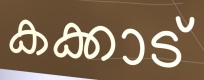
കക്കാട്